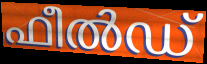
ഫീൽഡ്